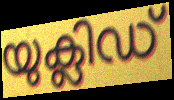
യുക്ലിഡ്